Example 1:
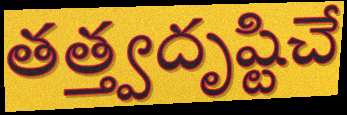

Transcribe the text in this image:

తత్త్వదృష్టిచే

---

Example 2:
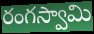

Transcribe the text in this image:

రంగస్వామి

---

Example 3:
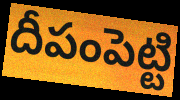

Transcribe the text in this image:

దీపంపెట్టి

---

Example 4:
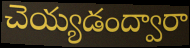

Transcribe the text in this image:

చెయ్యడంద్వారా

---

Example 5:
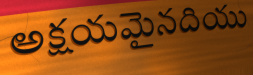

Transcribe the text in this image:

అక్షయమైనదియు